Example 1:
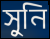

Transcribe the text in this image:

সুনি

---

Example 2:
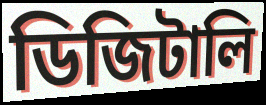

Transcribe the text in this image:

ডিজিটালি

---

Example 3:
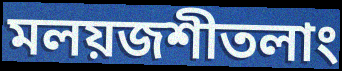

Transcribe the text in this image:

মলয়জশীতলাং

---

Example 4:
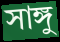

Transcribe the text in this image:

সাঙ্গু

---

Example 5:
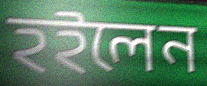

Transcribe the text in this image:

হইলেন